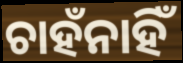
ଚାହଁନାହିଁ